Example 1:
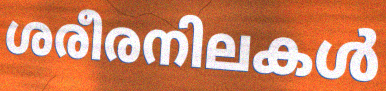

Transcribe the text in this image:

ശരീരനിലകൾ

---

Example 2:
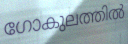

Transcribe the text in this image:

ഗോകുലത്തിൽ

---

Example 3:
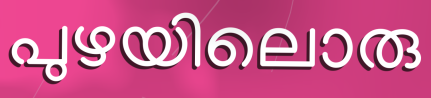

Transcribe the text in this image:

പുഴയിലൊരു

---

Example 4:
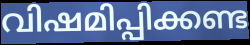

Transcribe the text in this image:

വിഷമിപ്പിക്കണ്ട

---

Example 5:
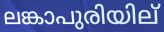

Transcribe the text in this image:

ലങ്കാപുരിയില്